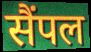
सैंपल